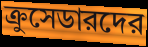
ক্রুসেডারদের